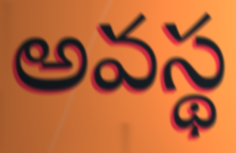
అవస్థ